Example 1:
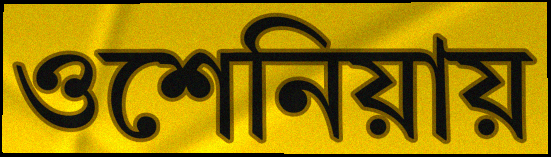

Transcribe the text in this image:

ওশেনিয়ায়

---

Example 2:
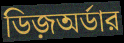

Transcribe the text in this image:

ডিজ়অর্ডার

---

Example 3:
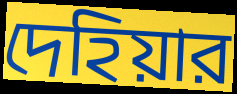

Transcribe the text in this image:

দেহিয়ার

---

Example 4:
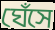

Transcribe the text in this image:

ঘেঁসে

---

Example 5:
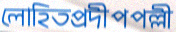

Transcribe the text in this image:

লোহিতপ্রদীপপল্লী